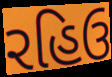
રહિઉ